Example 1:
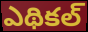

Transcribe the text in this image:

ఎథికల్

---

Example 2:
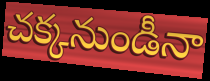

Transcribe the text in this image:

చక్కనుండీనా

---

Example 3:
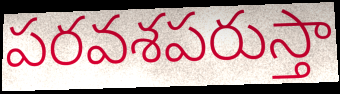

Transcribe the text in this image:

పరవశపరుస్తా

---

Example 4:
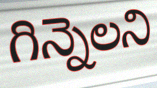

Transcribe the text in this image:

గిన్నెలని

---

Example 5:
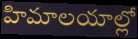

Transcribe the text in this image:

హిమాలయాల్లో